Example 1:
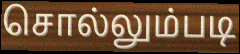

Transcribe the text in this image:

சொல்லும்படி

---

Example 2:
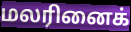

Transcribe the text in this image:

மலரினைக்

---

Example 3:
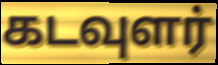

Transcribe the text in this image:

கடவுளர்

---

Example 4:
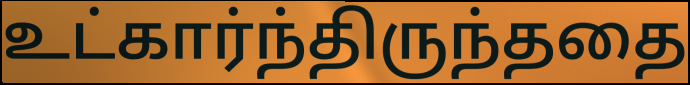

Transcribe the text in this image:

உட்கார்ந்திருந்ததை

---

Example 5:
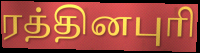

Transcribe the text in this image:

ரத்தினபுரி